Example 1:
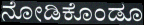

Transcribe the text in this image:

ನೋಡಿಕೊಂಡೂ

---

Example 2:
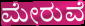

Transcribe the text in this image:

ಮೇರುವೆ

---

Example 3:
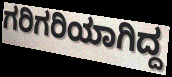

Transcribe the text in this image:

ಗರಿಗರಿಯಾಗಿದ್ದ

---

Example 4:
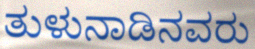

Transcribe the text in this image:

ತುಳುನಾಡಿನವರು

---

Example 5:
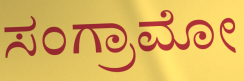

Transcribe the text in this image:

ಸಂಗ್ರಾಮೋ